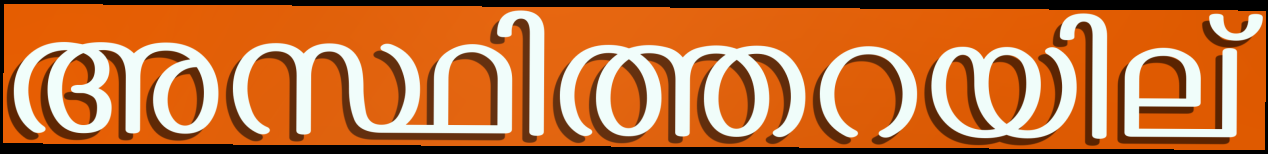
അസ്ഥിത്തറയില്